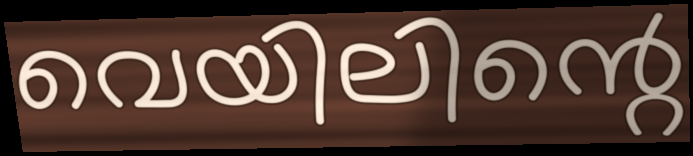
വെയിലിന്റെ